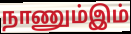
நாணும்இம்